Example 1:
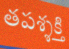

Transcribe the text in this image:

తపశ్శక్తి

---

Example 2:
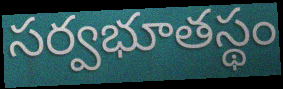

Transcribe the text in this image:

సర్వభూతస్థం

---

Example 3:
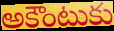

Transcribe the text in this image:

అకౌంటుకు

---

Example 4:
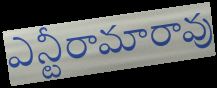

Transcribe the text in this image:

ఎన్టీరామారావు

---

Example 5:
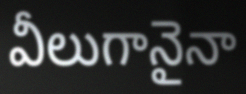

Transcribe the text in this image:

వీలుగానైనా